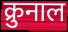
क्रुनाल